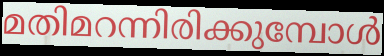
മതിമറന്നിരിക്കുമ്പോൾ